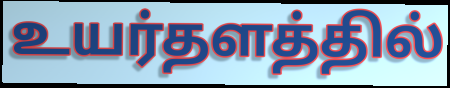
உயர்தளத்தில்